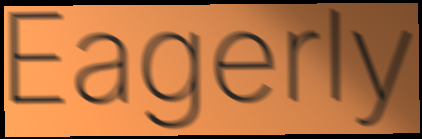
Eagerly